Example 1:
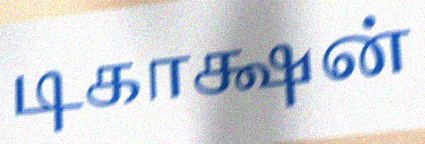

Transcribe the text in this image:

டிகாக்ஷன்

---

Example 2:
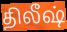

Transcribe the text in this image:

திலீஷ்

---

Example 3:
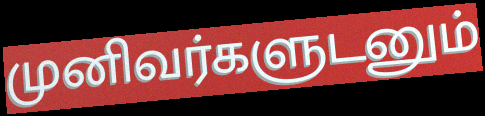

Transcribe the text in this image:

முனிவர்களுடனும்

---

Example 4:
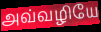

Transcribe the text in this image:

அவ்வழியே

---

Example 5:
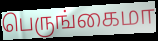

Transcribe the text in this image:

பெருங்கைமா